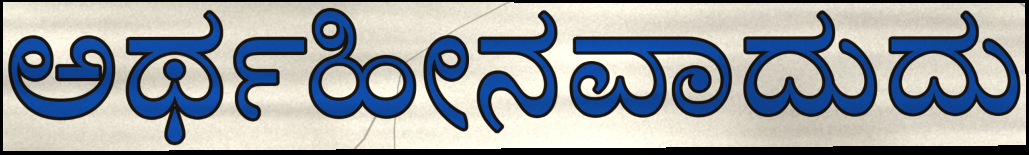
ಅರ್ಥಹೀನವಾದುದು